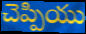
చెప్పియు